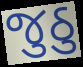
જુઠુ